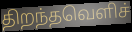
திறந்தவெளிச்